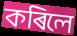
কৰিলে